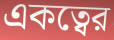
একত্বের